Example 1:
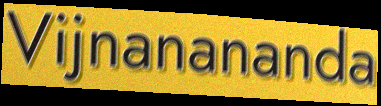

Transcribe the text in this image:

Vijnanananda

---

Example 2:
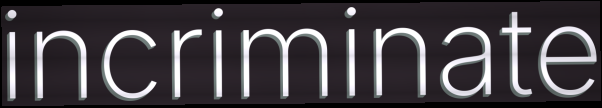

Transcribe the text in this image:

incriminate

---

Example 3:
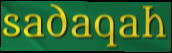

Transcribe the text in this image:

sadaqah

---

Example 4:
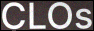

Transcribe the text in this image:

CLOs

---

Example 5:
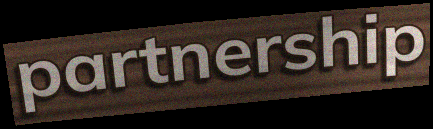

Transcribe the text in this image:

partnership